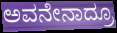
ಅವನೇನಾದ್ರೂ